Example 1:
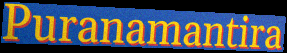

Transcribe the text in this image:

Puranamantira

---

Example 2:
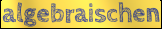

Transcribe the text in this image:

algebraischen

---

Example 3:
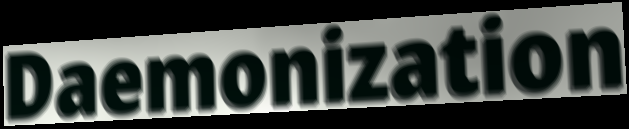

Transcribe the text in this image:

Daemonization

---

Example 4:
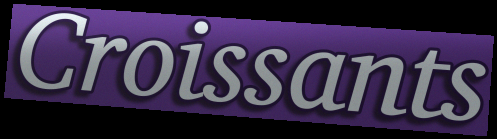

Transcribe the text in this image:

Croissants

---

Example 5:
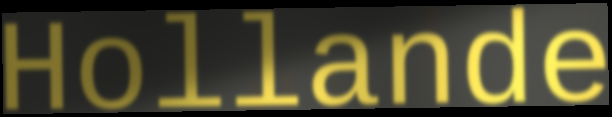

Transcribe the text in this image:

Hollande